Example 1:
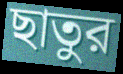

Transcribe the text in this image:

ছাতুর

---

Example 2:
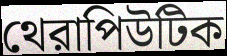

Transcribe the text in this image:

থেরাপিউটিক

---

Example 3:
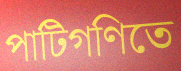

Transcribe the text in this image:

পাটিগণিতে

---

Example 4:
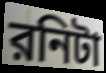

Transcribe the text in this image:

রনিটা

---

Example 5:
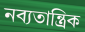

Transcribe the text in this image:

নব্যতান্ত্রিক